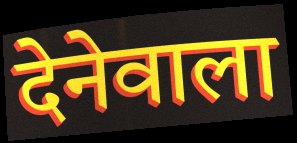
देनेवाला